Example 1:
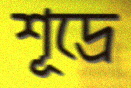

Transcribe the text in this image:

শূদ্রে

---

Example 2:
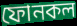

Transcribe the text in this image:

ফোনকল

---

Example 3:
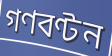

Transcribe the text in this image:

গণবণ্টন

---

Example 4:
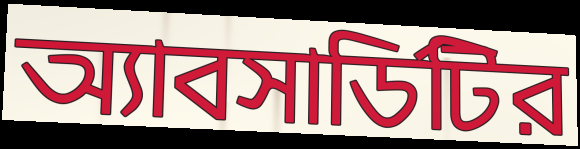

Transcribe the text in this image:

অ্যাবসার্ডিটির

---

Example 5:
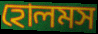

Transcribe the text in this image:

হোলমস